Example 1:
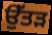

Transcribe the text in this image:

ਉੱਤੜ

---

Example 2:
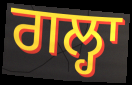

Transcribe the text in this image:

ਗਲ੍ਹ੍ਹਾ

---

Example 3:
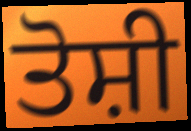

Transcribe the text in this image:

ਤੋਸ਼ੀ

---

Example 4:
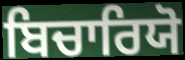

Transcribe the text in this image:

ਬਿਚਾਰਿਯੋ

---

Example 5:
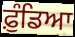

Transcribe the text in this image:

ਫ਼ੁੰਡਿਆ